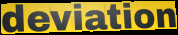
deviation